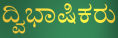
ದ್ವಿಭಾಷಿಕರು